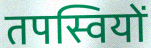
तपस्वियों